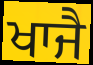
ਖਾਜੈ